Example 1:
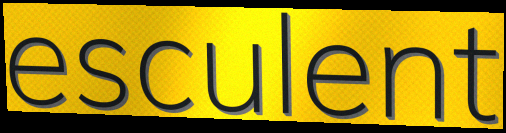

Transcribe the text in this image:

esculent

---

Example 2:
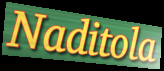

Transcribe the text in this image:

Naditola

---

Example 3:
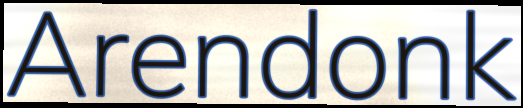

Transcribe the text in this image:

Arendonk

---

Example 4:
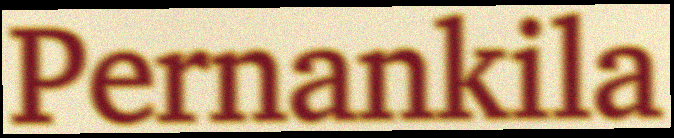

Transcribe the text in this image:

Pernankila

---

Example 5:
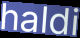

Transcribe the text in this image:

haldi